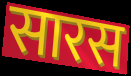
सारस